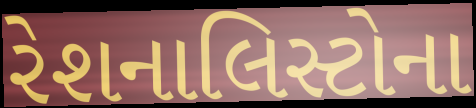
રેશનાલિસ્ટોના